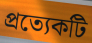
প্ৰত্যেকটি